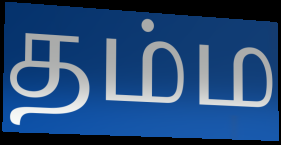
தம்ம